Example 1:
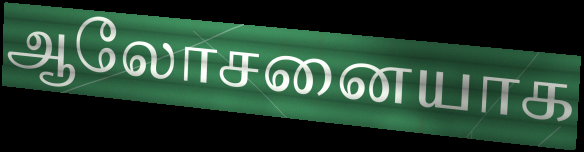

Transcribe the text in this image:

ஆலோசனையாக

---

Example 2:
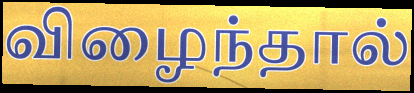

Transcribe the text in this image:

விழைந்தால்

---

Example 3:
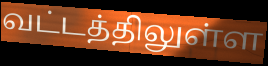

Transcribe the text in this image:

வட்டத்திலுள்ள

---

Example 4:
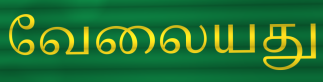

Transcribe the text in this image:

வேலையது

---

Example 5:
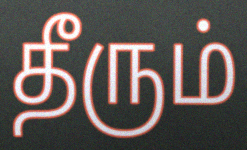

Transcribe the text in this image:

தீரும்